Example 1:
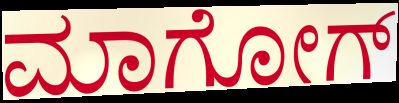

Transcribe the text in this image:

ಮಾಗೋಗ್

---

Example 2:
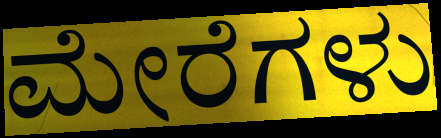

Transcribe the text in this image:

ಮೇರೆಗಳು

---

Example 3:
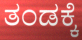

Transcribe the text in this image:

ತಂಡಕ್ಕೆ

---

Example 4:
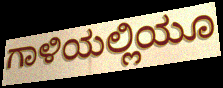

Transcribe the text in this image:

ಗಾಳಿಯಲ್ಲಿಯೂ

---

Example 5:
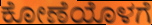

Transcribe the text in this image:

ಕೋಣೆಯೊಳಗೆ